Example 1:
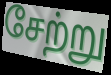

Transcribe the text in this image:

சேற்று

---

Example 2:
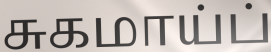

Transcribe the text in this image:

சுகமாய்ப்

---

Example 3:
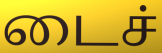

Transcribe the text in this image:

டைச்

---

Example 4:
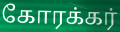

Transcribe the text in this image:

கோரக்கர்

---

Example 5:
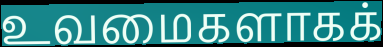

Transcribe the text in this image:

உவமைகளாகக்